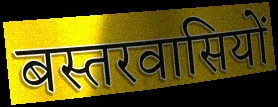
बस्तरवासियों